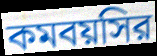
কমবয়সির